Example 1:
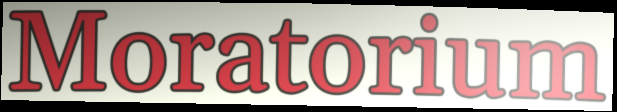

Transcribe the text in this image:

Moratorium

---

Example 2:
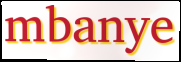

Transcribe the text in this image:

mbanye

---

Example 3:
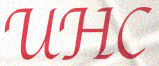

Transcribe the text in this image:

UHC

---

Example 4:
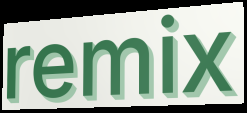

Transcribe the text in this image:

remix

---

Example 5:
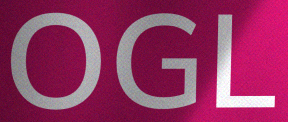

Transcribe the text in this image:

OGL